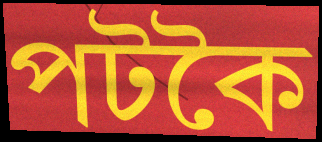
পটকৈ